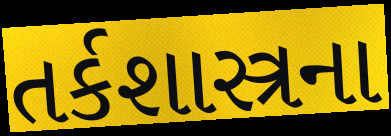
તર્કશાસ્ત્રના